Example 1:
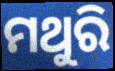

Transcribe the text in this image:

ମଥୁରି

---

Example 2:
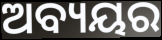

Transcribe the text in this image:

ଅବ୍ୟୟର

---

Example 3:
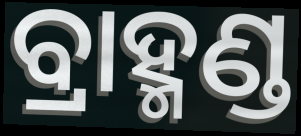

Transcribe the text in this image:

ବ୍ରାହ୍ମଣ୍ଡ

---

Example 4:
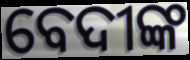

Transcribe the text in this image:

ବେଦୀଙ୍କ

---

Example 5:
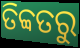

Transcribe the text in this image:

ତିବ୍ବତରୁ